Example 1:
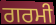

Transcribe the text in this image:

ਗਰਮੀ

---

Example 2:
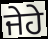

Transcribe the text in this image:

ਜੇਹੇ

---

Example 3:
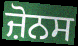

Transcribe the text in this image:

ਜ਼ੋਨਸ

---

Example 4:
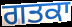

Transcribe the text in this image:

ਗਤਕਾ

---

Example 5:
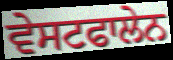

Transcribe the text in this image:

ਵੇਸਟਫਾਲੇਨ